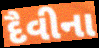
દૈવીના